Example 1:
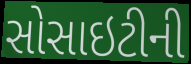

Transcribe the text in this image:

સોસાઇટીની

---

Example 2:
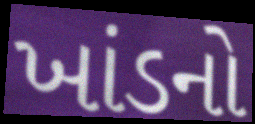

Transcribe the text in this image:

ખાંડનો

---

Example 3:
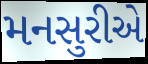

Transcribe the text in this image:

મનસુરીએ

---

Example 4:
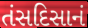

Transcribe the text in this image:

તંસદિસાનં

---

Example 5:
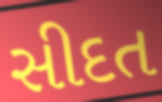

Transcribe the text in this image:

સીદત